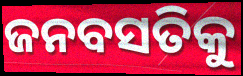
ଜନବସତିକୁ